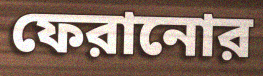
ফেরানোর